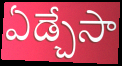
ఏడ్చేసా